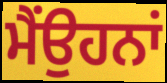
ਮੈਂਉਹਨਾਂ